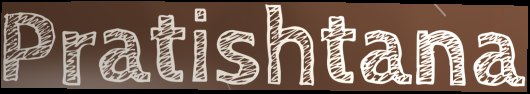
Pratishtana